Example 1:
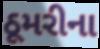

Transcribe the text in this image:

ઠૂમરીના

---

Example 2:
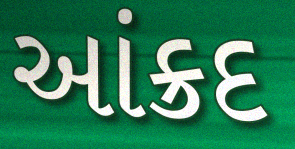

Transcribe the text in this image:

આંક્રદ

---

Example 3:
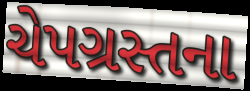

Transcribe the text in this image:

ચેપગ્રસ્તના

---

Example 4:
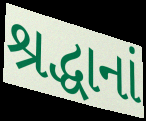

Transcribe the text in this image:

શ્રદ્ધાનાં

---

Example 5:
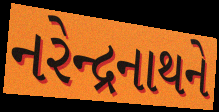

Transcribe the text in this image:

નરેન્દ્રનાથને